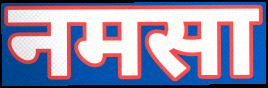
नमसा